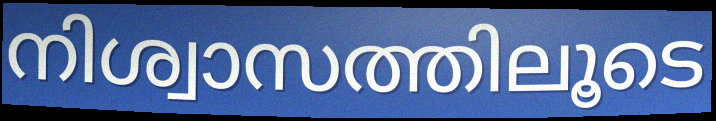
നിശ്വാസത്തിലൂടെ